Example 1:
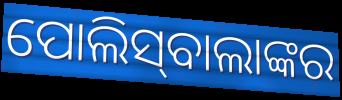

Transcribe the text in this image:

ପୋଲିସ୍‌ବାଲାଙ୍କର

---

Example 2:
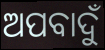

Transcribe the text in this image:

ଅପବାଦୁଁ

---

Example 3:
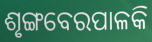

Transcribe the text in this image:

ଶୃଙ୍ଗବେରପାଳକି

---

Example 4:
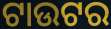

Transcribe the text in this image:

ଟାଉଟର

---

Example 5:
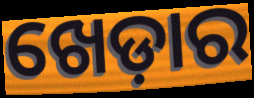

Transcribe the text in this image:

ଖେଡ଼ାର